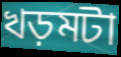
খড়মটা